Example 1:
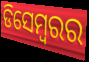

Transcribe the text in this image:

ଡିସେମ୍ୱରର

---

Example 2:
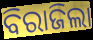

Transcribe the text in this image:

ବିରାଜିଲା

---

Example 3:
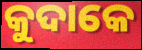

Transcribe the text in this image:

କୁଦାକେ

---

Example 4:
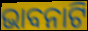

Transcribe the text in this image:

ଭାବନାଟି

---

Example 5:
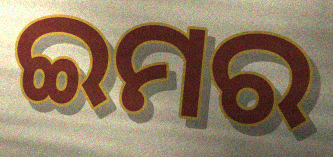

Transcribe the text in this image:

ଇମର